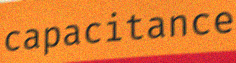
capacitance